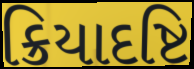
ક્રિયાદષ્ટિ